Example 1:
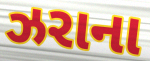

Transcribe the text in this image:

ઝરાના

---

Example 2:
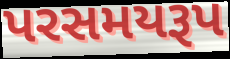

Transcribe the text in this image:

પરસમયરૂપ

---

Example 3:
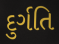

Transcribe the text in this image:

દુર્ગતિ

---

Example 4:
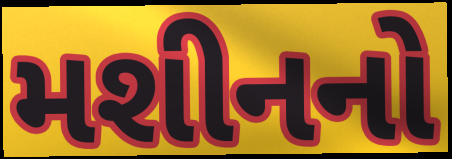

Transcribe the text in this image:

મશીનનો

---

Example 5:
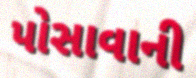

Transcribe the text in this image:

પોસાવાની